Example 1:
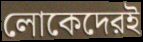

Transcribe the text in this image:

লোকেদেরই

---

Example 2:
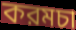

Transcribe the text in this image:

করমচা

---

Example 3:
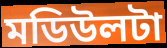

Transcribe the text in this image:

মডিউলটা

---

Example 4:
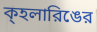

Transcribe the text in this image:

ক্হলারিঙের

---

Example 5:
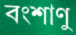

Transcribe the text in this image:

বংশাণু